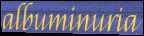
albuminuria